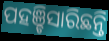
ପହଞ୍ଚିସାରିଛନ୍ତି